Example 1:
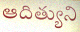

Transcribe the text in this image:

ఆదిత్యుని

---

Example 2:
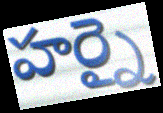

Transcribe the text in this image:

హర్నై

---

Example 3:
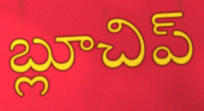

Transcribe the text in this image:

బ్లూచిప్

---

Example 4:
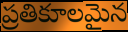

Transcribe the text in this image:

ప్రతికూలమైన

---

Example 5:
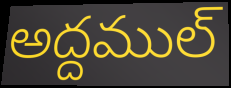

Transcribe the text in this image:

అద్దముల్